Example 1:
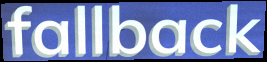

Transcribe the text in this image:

fallback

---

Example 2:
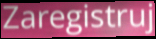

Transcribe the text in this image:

Zaregistruj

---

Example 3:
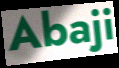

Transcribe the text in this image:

Abaji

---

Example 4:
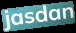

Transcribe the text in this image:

jasdan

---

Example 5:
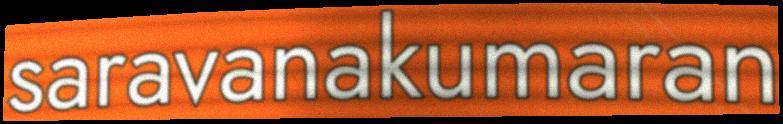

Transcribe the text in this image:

saravanakumaran